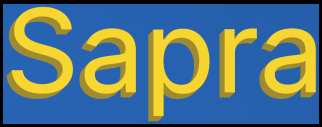
Sapra